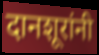
दानशूरांनी